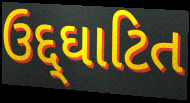
ઉદ્દ્ઘાટિત